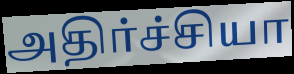
அதிர்ச்சியா